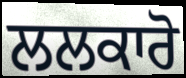
ਲਲਕਾਰੋ